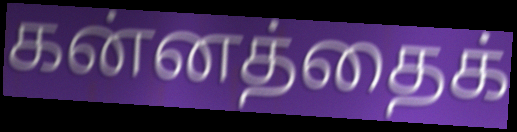
கன்னத்தைக்